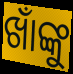
ଖାଁଙ୍କୁ